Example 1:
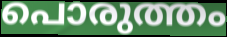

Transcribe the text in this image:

പൊരുത്തം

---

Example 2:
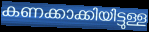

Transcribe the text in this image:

കണക്കാക്കിയിട്ടുള്ള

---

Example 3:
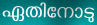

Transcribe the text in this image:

ഏതിനോടു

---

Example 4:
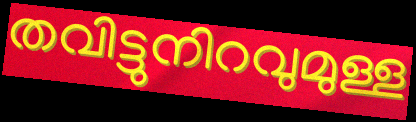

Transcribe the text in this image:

തവിട്ടുനിറവുമുള്ള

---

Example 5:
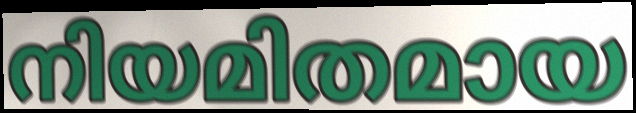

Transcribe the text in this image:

നിയമിതമായ